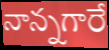
నాన్నగారే